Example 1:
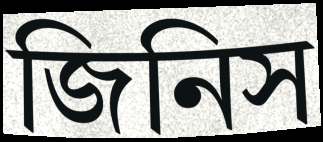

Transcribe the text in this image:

জিনিস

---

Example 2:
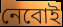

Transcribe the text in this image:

নেবোই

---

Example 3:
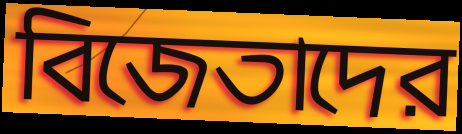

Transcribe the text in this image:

বিজেতাদের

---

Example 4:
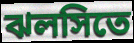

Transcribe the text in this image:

ঝলসিতে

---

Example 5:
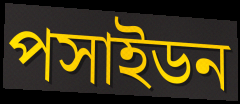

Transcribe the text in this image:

পসাইডন